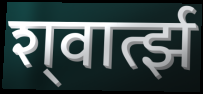
श्वार्त्झ